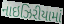
નાઇઝિરીયામાં